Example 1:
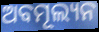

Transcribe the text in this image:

ଅବମୂଲ୍ୟନ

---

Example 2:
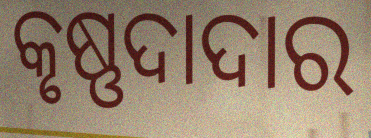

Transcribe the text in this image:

କୃଷ୍ଣଦାଦାର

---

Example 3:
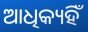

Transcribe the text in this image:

ଆଧିକ୍ୟହିଁ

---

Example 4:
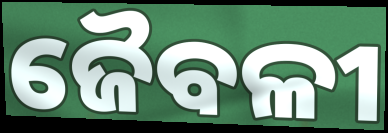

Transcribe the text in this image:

ଜୈବଳୀ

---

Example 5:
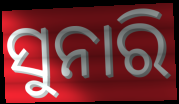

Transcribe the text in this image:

ସୁନାରି